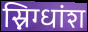
स्निग्धांश